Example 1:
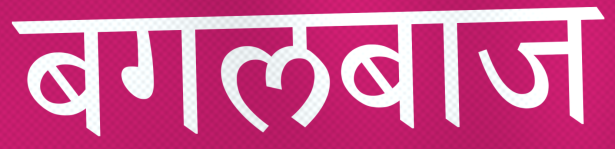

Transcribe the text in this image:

बगलबाज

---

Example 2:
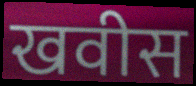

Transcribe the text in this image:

खवीस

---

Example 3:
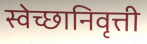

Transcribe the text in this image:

स्वेच्छानिवृत्ती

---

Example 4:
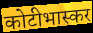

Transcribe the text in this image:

कोटीभास्कर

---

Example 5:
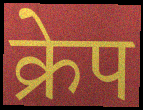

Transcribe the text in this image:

क्रेप